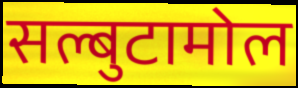
सल्बुटामोल